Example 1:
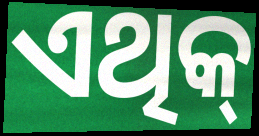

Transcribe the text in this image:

ଏଥିକ୍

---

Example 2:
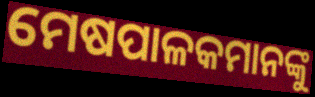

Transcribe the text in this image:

ମେଷପାଳକମାନଙ୍କୁ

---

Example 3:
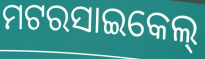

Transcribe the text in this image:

ମଟରସାଇକେଲ୍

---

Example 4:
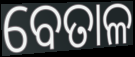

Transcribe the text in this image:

ବେତାଳ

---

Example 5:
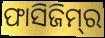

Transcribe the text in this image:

ଫାସିଜିମ୍‌ର